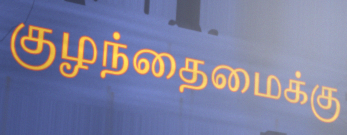
குழந்தைமைக்கு